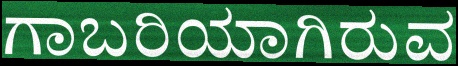
ಗಾಬರಿಯಾಗಿರುವ